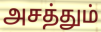
அசத்தும்